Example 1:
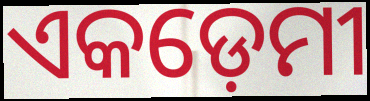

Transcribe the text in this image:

ଏକଡ଼େମୀ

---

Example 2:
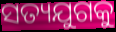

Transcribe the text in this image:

ସତ୍ୟଯୁଗକୁ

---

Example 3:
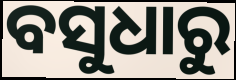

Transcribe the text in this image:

ବସୁଧାରୁ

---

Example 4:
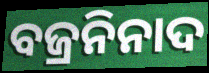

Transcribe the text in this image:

ବଜ୍ରନିନାଦ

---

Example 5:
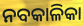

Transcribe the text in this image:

ନବକାଳିକା